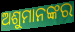
ଅଶୁମାନଙ୍କର